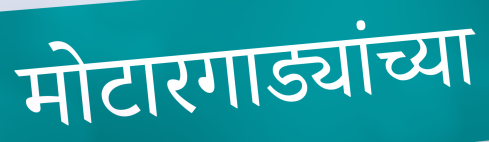
मोटारगाड्यांच्या